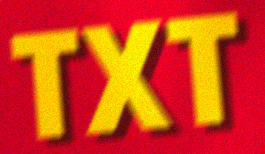
TXT